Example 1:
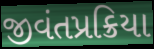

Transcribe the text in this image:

જીવંતપ્રક્રિયા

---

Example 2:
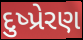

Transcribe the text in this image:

દુષ્પ્રેરણ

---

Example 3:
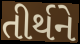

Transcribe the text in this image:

તીર્થને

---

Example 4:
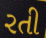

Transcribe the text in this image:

રતી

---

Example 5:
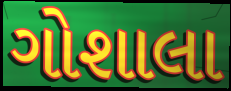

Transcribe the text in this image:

ગોશાલા